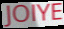
JOIYE